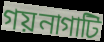
গয়নাগাটি